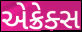
એક્રેક્સ